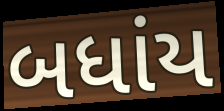
બધાંય